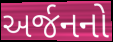
અર્જનનો